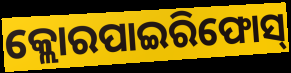
କ୍ଲୋରପାଇରିଫୋସ୍